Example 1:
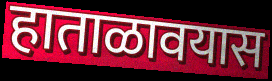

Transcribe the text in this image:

हाताळावयास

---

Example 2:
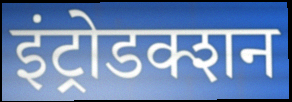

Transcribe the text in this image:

इंट्रोडक्शन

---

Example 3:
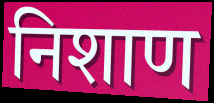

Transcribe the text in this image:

निशाण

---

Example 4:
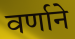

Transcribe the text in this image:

वर्णाने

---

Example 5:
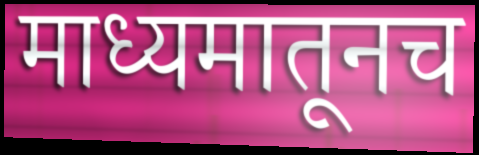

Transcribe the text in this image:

माध्यमातूनच